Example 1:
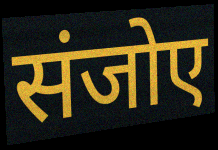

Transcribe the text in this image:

संजोए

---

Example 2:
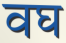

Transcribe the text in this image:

वघ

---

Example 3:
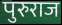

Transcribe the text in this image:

पुरुराज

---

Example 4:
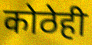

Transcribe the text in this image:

कोठेही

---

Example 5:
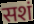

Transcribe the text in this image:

सशं